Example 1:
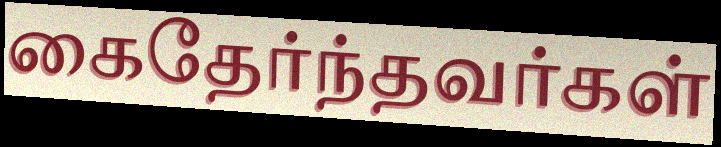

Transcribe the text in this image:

கைதேர்ந்தவர்கள்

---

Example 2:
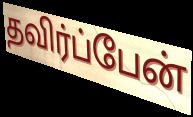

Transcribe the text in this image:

தவிர்ப்பேன்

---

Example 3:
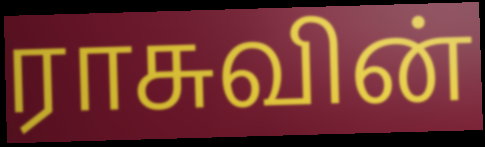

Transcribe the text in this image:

ராசுவின்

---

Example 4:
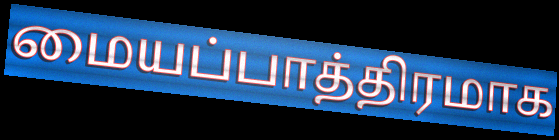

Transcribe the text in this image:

மையப்பாத்திரமாக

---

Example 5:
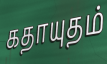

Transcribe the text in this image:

கதாயுதம்